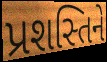
પ્રશસ્તિને